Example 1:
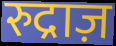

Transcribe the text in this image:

रुद्राज़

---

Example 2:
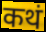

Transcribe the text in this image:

कथं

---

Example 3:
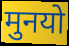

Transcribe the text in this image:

मुनयो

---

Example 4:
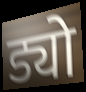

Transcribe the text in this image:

ड्यो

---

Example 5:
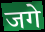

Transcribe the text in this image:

जगे